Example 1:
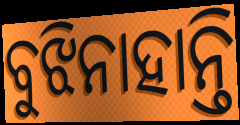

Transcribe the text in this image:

ବୁଝିନାହାନ୍ତି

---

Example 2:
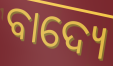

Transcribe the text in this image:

ବାଦ୍ୟେ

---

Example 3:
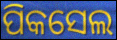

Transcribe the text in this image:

ପିକସେଲ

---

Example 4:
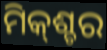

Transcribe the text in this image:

ମିକ୍‌ଶ୍ଚର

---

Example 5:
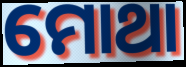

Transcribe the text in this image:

ମୋଥା